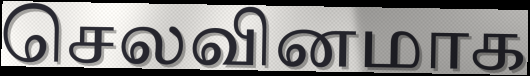
செலவினமாக